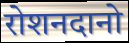
रोशनदानो